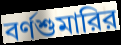
বর্ণশুমারির